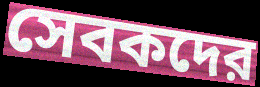
সেবকদের